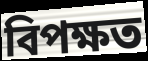
বিপক্ষত